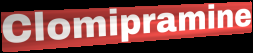
Clomipramine